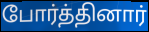
போர்த்தினார்